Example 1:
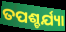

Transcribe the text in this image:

ତପଶ୍ଚର୍ଯ୍ୟା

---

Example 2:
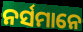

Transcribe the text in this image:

ନର୍ସମାନେ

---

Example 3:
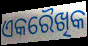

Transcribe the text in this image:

ଏକରୈଖିକ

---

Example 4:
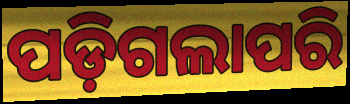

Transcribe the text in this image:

ପଡ଼ିଗଲାପରି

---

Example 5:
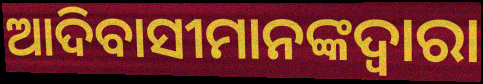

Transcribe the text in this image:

ଆଦିବାସୀମାନଙ୍କଦ୍ୱାରା